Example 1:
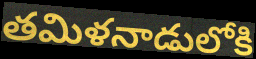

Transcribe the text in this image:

తమిళనాడులోకి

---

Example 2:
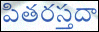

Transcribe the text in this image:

పితరస్తదా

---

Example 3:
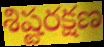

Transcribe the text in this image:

శిష్టరక్షణ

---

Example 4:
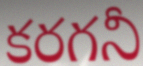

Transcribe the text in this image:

కరగనీ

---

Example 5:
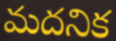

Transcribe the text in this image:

మదనిక